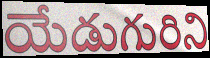
యేడుగురిని